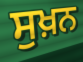
ਸੁਖ਼ਨ